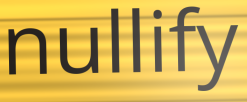
nullify